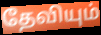
தேவியும்